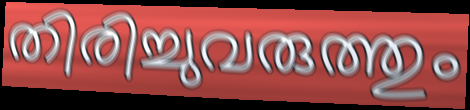
തിരിച്ചുവരുത്തും